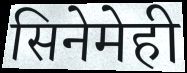
सिनेमेही